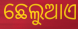
ଛେଲୁଆଏ